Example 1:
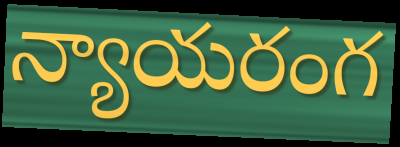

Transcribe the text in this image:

న్యాయరంగ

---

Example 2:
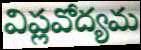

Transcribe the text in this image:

విప్లవోద్యమ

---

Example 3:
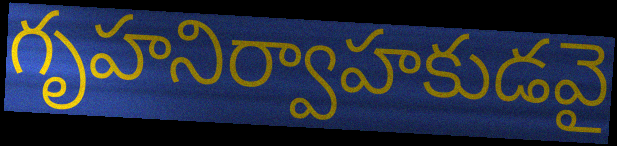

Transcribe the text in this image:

గృహనిర్వాహకుడవై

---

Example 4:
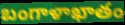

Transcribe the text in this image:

బంగాళాఖాతం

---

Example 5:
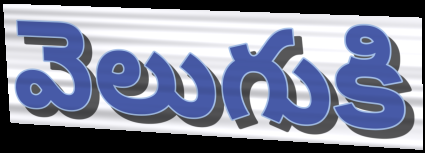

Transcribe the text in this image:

వెలుగుకి